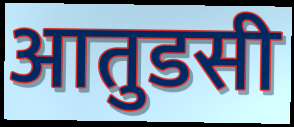
आतुडसी